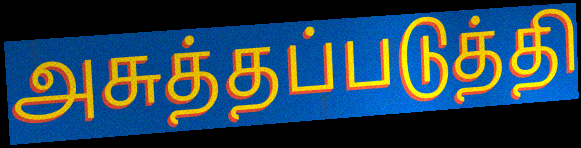
அசுத்தப்படுத்தி